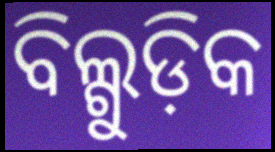
ବିଲ୍ଗୁଡ଼ିକ